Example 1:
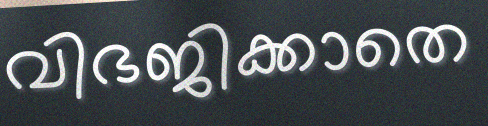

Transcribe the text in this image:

വിഭജിക്കാതെ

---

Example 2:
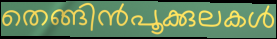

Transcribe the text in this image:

തെങ്ങിൻപൂക്കുലകൾ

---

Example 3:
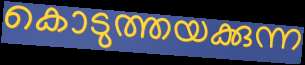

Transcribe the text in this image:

കൊടുത്തയക്കുന്ന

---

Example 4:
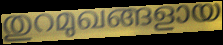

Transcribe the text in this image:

തുറമുഖങ്ങളായ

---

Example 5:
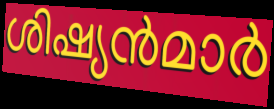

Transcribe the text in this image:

ശിഷ്യൻമാർ